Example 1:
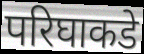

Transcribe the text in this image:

परिघाकडे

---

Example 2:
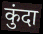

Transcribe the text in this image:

कुंदा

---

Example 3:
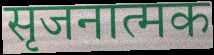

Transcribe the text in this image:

सृजनात्मक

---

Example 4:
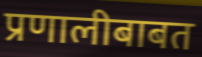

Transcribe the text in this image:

प्रणालीबाबत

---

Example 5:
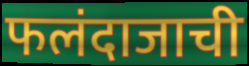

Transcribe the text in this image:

फलंदाजाची